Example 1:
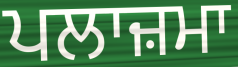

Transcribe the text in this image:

ਪਲਾਜ਼ਮਾ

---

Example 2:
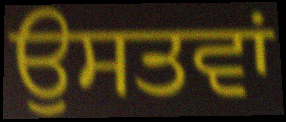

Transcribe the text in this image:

ਉਸਤਵਾਂ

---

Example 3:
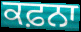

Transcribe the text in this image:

ਕਫ਼ਨਾ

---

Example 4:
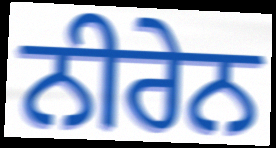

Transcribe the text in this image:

ਨੀਰੇਨ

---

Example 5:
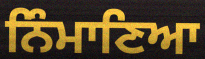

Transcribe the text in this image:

ਨਿੰਮਾਣਿਆ